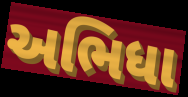
અભિધા